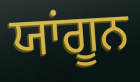
ਯਾਂਗੂਨ